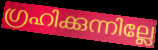
ഗ്രഹിക്കുന്നില്ലേ